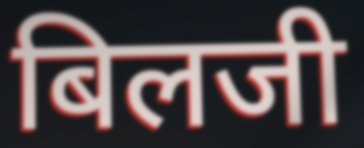
बिलजी